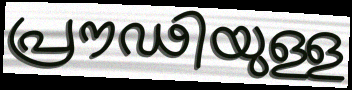
പ്രൗഢിയുള്ള